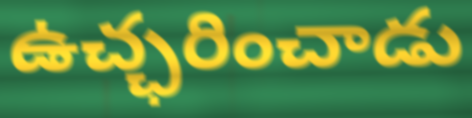
ఉచ్ఛరించాడు